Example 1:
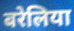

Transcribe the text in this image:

बरेलिया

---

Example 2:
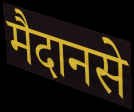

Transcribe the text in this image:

मैदानसे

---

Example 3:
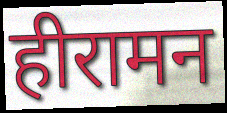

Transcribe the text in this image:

हीरामन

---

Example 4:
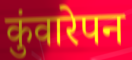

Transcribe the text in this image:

कुंवारेपन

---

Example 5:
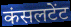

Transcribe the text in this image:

कंसलटेंट